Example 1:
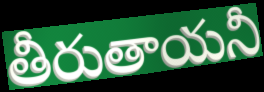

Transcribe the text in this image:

తీరుతాయనీ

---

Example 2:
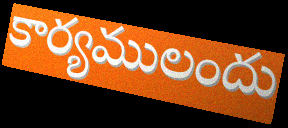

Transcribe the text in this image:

కార్యములందు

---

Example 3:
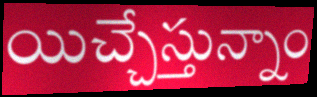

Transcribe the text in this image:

యిచ్చేస్తున్నాం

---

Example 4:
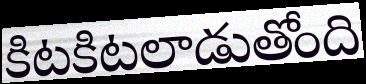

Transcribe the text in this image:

కిటకిటలాడుతోంది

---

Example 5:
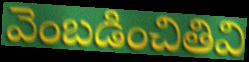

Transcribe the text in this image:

వెంబడించితివి